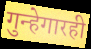
गुन्हेगारही